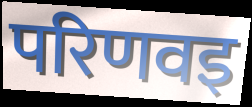
परिणवइ